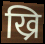
ख्रि